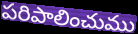
పరిపాలించుము